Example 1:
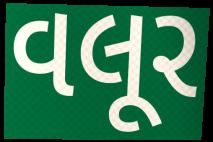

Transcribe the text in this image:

વલૂર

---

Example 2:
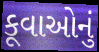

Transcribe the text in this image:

કૂવાઓનું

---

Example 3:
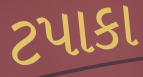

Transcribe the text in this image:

ટપાકા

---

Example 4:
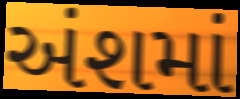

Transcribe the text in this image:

અંશમાં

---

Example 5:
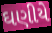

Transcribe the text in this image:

ઘણીયે